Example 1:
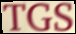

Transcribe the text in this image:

TGS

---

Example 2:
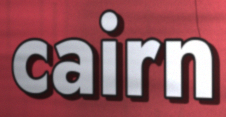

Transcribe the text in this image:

cairn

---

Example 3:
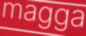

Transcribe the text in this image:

magga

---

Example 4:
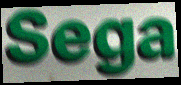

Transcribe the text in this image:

Sega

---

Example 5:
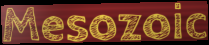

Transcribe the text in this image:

Mesozoic